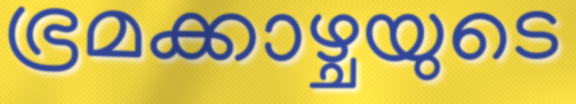
ഭ്രമക്കാഴ്ചയുടെ